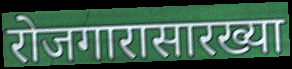
रोजगारासारख्या